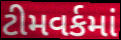
ટીમવર્કમાં